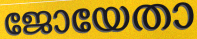
ജോയേതാ